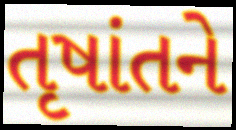
તૃષાંતને